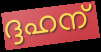
ദ്ദഹന്